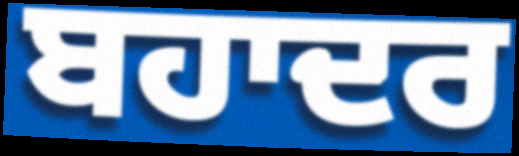
ਬਹਾਦਰ